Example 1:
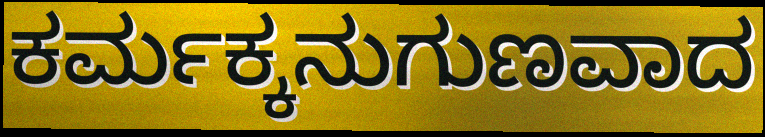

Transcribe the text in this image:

ಕರ್ಮಕ್ಕನುಗುಣವಾದ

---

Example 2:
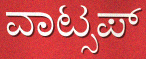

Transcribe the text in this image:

ವಾಟ್ಸಪ್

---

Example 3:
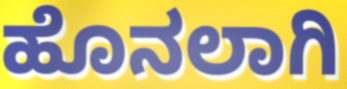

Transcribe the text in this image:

ಹೊನಲಾಗಿ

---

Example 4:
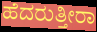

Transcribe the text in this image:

ಹೆದರುತ್ತೀರಾ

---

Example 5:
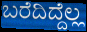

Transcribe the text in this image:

ಬರೆದಿದ್ದೆಲ್ಲ